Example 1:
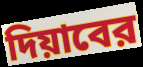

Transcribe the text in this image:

দিয়াবের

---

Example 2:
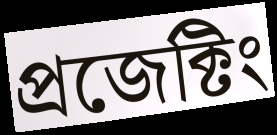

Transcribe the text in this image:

প্রজেক্টিং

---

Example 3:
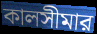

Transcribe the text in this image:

কালসীমার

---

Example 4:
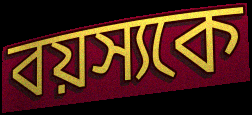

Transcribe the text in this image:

বয়স্যকে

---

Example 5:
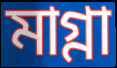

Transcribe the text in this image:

মাগ্না